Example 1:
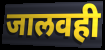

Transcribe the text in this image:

जालवही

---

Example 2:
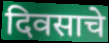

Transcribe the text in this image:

दिवसाचे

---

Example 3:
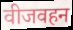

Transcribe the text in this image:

वीजवहन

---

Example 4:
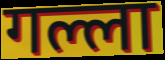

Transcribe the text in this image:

गल्ला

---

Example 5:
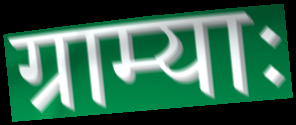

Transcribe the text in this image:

ग्राम्याः